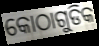
କୋଠାଗୁଡିକ